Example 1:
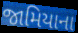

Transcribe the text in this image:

જામિયાના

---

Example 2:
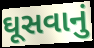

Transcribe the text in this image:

ઘૂસવાનું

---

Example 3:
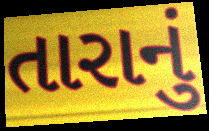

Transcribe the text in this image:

તારાનું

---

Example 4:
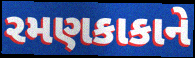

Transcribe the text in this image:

રમણકાકાને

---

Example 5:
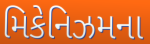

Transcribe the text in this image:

મિકેનિઝમના